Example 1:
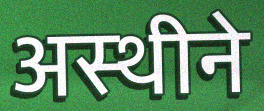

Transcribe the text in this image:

अस्थीने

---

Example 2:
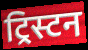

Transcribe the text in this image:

ट्रिस्टन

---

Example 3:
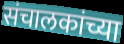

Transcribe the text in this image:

संचालकांच्या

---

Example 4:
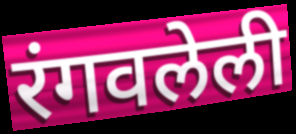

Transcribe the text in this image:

रंगवलेली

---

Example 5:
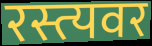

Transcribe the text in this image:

रस्त्यवर